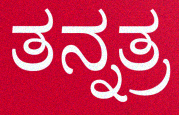
ತನ್ನತ್ರ